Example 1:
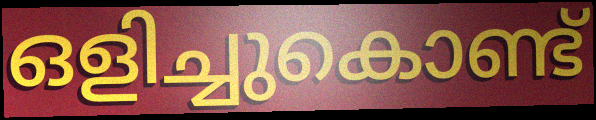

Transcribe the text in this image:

ഒളിച്ചുകൊണ്ട്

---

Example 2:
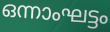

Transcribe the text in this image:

ഒന്നാംഘട്ടം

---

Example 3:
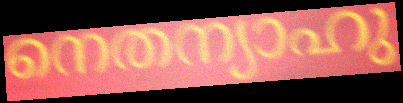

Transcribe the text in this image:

നെതന്യാഹു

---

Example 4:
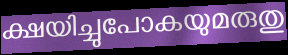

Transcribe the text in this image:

ക്ഷയിച്ചുപോകയുമരുതു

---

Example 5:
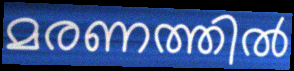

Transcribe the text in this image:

മരണത്തിൽ